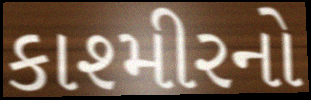
કાશ્મીરનો